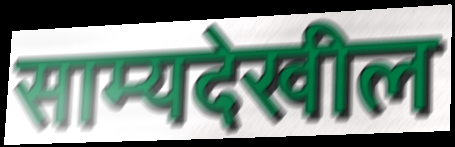
साम्यदेखील